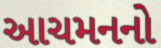
આચમનનો